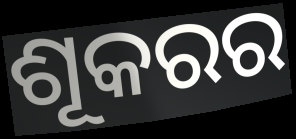
ଶୂକରର